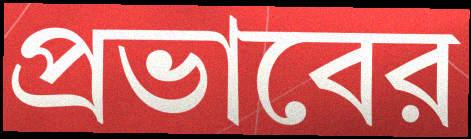
প্রভাবের